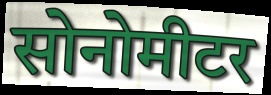
सोनोमीटर